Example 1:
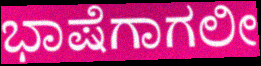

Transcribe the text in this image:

ಭಾಷೆಗಾಗಲೀ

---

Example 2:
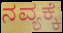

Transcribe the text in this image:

ನವ್ಯಕ್ಕೆ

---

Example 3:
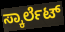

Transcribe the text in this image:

ಸ್ಕಾರ್ಲೆಟ್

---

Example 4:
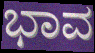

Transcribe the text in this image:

ಭಾವ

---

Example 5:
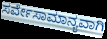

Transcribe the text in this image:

ಸರ್ವೇಸಾಮಾನ್ಯವಾಗಿ